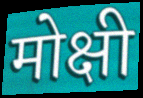
मोक्षी